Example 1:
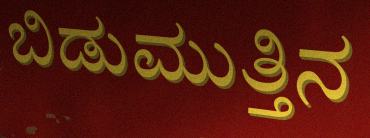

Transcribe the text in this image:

ಬಿಡುಮುತ್ತಿನ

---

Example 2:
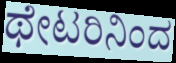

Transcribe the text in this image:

ಥೇಟರಿನಿಂದ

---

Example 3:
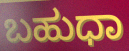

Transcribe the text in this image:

ಬಹುಧಾ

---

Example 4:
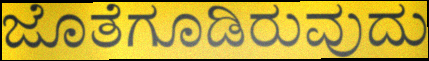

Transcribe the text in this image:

ಜೊತೆಗೂಡಿರುವುದು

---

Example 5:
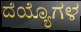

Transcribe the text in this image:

ದೆಯ್ಯೊಗಳ